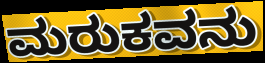
ಮರುಕವನು